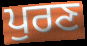
ਪੁਰਣ